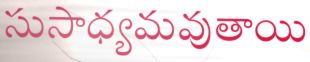
సుసాధ్యమవుతాయి